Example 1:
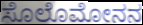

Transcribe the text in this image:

ಸೊಲೊಮೋನನ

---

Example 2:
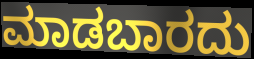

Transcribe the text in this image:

ಮಾಡಬಾರದು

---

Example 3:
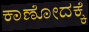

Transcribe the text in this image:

ಕಾಣೋದಕ್ಕೆ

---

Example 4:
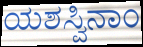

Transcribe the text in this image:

ಯಶಸ್ವಿನಾಂ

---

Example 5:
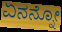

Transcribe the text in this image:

ಏನನ್ನೋ